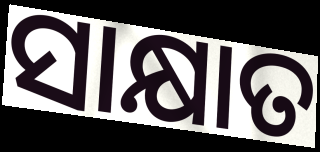
ସାକ୍ଷାତ